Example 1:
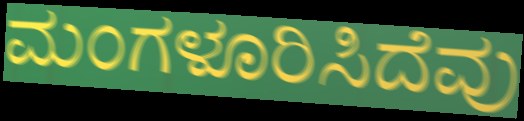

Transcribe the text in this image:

ಮಂಗಳೂರಿಸಿದೆವು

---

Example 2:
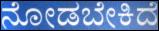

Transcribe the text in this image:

ನೋಡಬೇಕಿದೆ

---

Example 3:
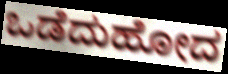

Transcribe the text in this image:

ಒಡೆದುಹೋದ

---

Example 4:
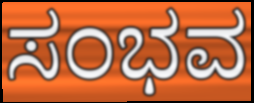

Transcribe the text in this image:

ಸಂಭವ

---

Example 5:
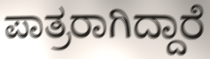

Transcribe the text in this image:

ಪಾತ್ರರಾಗಿದ್ದಾರೆ